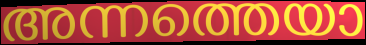
അന്നത്തെയാ